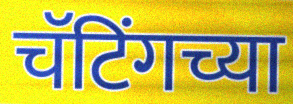
चॅटिंगच्या